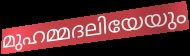
മുഹമ്മദലിയേയും